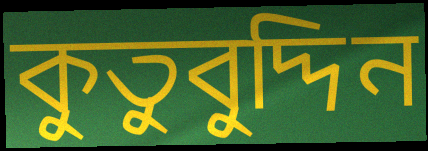
কুতুবুদ্দিন